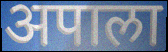
अपाला